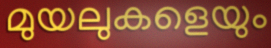
മുയലുകളെയും